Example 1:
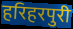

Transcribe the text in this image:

हरिहरपुरी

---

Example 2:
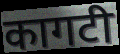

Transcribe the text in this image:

कागटी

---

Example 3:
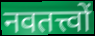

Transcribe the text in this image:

नवतत्त्वों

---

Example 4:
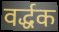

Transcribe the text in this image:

वर्द्धक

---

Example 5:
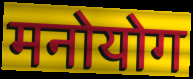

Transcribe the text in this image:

मनोयोग